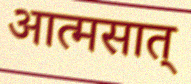
आत्मसात्